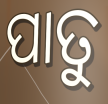
ପାତୁ